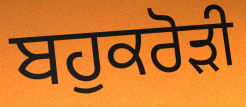
ਬਹੁਕਰੋਡ਼ੀ